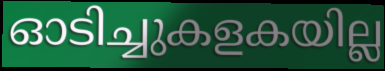
ഓടിച്ചുകളകയില്ല